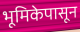
भूमिकेपासून